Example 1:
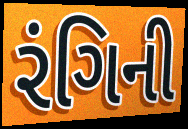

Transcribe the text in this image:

રંગિની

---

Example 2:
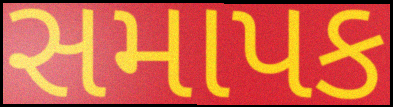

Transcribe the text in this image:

સમાપક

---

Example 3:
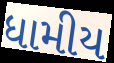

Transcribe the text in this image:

ધામીય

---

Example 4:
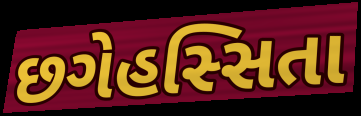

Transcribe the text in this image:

છગેહસ્સિતા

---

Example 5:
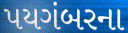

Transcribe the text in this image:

પયગંબરના